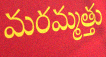
మరమ్మత్తు